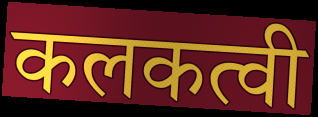
कलकत्वी